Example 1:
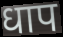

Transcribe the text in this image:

धाप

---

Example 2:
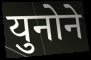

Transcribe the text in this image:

युनोने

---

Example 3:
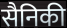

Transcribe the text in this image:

सैनिकी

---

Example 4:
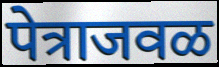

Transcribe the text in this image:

पेत्राजवळ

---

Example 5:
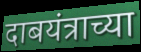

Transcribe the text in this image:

दाबयंत्राच्या